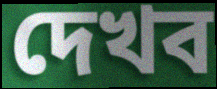
দেখব